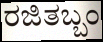
ರಜಿತಬ್ಬಂ